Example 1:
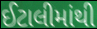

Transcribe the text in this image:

ઈટાલીમાંથી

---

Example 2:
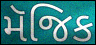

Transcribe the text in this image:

મૅજિક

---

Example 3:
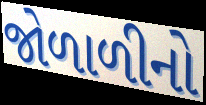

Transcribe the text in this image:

જોળાળીનો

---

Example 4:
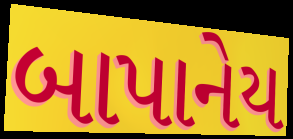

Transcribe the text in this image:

બાપાનેય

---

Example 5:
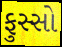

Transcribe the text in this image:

ફુસ્સો